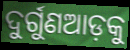
ଦୁର୍ଗୁଣଆଡ଼କୁ